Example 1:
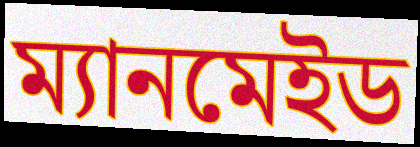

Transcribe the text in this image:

ম্যানমেইড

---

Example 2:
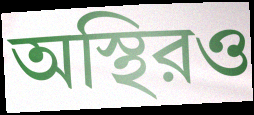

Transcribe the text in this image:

অস্থিরও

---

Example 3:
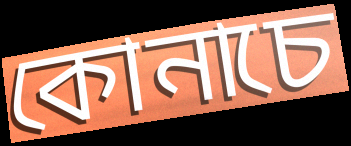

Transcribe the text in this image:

কোনাচে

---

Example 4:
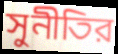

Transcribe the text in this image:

সুনীতির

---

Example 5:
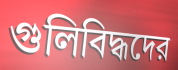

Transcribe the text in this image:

গুলিবিদ্ধদের